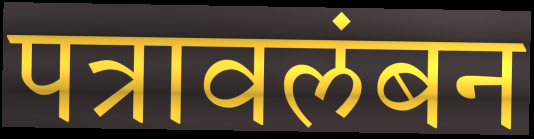
पत्रावलंबन